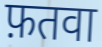
फ़तवा